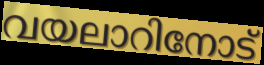
വയലാറിനോട്